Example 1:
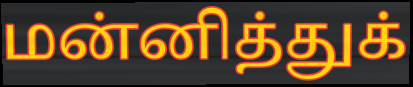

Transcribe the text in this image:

மன்னித்துக்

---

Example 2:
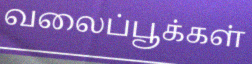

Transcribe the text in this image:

வலைப்பூக்கள்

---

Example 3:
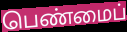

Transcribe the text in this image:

பெண்மைப்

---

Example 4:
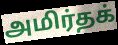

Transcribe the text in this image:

அமிர்தக்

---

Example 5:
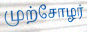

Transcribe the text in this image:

முற்சோழர்